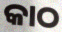
କାଠ